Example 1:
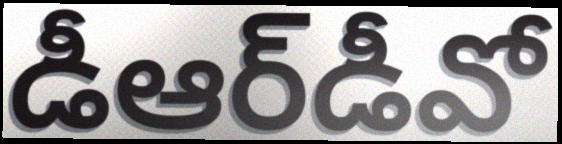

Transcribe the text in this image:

డీఆర్‌డీవో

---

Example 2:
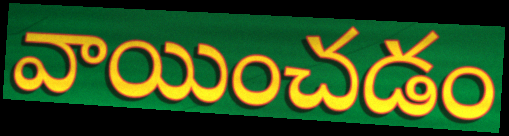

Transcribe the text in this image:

వాయించడం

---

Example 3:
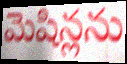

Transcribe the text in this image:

మెషిన్లను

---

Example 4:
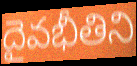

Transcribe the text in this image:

దైవభీతిని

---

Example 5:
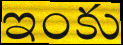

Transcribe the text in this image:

ఇంకు